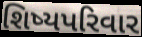
શિષ્યપરિવાર